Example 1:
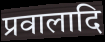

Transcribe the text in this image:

प्रवालादि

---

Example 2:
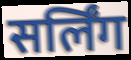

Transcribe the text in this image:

सर्लिंग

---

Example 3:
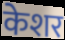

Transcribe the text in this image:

केशर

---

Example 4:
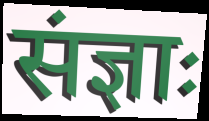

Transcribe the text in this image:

संज्ञाः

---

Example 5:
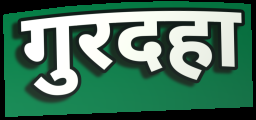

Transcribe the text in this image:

गुरदहा